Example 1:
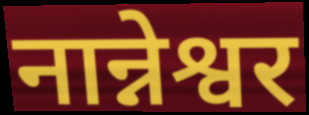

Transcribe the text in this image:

नान्नेश्वर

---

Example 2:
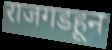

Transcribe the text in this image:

राजगडहून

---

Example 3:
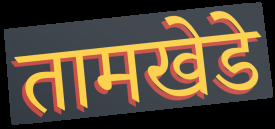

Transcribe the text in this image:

तामखेडे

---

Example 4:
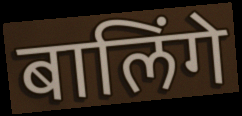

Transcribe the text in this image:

बालिंगे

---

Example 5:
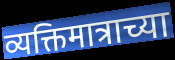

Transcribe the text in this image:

व्यक्तिमात्राच्या